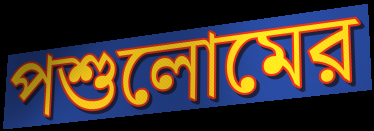
পশুলোমের